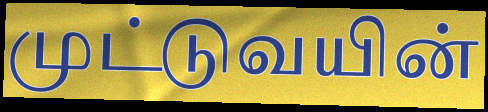
முட்டுவயின்